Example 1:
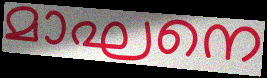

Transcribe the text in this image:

മാഘനെ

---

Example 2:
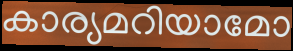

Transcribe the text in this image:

കാര്യമറിയാമോ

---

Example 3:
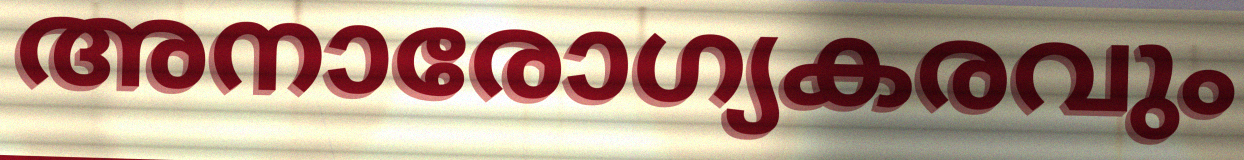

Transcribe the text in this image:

അനാരോഗ്യകരവും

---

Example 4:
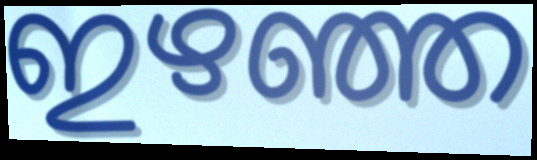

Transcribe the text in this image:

ഇഴഞ്ഞ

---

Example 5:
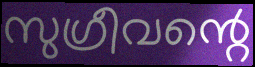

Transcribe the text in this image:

സുഗ്രീവന്റെ